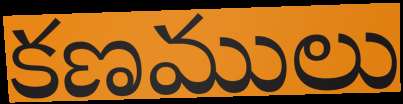
కణములు